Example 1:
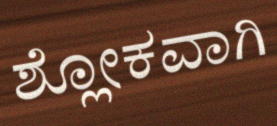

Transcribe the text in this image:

ಶ್ಲೋಕವಾಗಿ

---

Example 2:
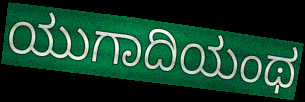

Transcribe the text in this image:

ಯುಗಾದಿಯಂಥ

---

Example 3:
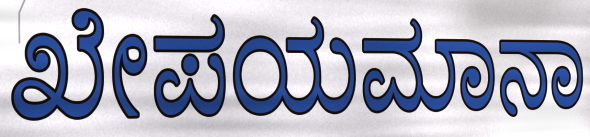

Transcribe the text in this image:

ಖೇಪಯಮಾನಾ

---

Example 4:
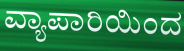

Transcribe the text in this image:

ವ್ಯಾಪಾರಿಯಿಂದ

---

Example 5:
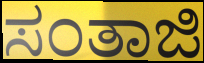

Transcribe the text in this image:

ಸಂತಾಜಿ